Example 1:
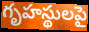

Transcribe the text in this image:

గృహస్థులపై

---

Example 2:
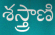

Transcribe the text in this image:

శస్త్రాణి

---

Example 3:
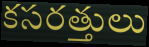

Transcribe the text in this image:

కసరత్తులు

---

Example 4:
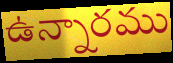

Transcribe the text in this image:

ఉన్నారము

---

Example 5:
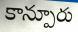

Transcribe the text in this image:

కాన్పూరు